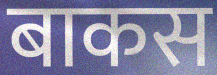
बाकस